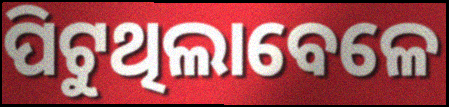
ପିଟୁଥିଲାବେଳେ